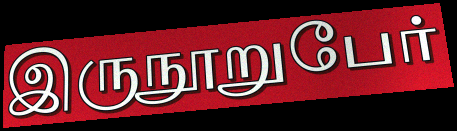
இருநூறுபேர்